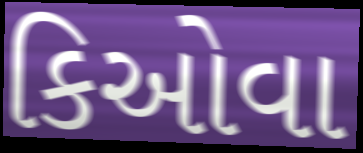
કિઓવા